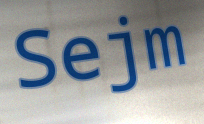
Sejm